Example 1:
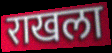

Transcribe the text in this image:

राखला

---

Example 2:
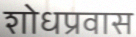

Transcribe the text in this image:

शोधप्रवास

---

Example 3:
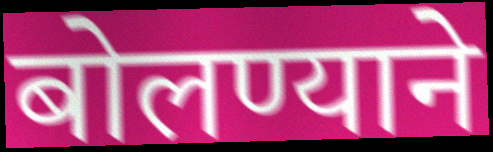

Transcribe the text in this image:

बोलण्याने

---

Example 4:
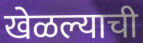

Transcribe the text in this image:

खेळल्याची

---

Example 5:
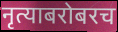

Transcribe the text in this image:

नृत्याबरोबरच